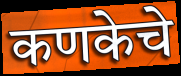
कणकेचे